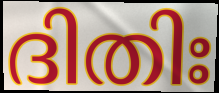
ദിതിഃ